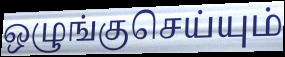
ஒழுங்குசெய்யும்